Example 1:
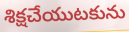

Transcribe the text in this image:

శిక్షచేయుటకును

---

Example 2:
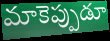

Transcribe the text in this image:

మాకెప్పుడూ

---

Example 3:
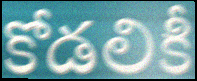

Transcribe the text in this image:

కోడలికీ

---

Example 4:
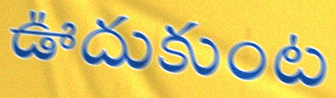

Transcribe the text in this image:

ఊదుకుంట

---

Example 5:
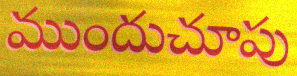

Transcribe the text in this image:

ముందుచూపు